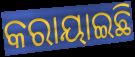
କରାୟାଇଛି